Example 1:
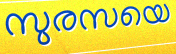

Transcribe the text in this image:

സുരസയെ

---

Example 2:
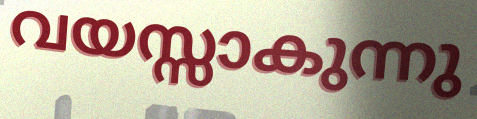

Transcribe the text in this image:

വയസ്സാകുന്നു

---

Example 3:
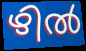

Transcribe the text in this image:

ഴിൽ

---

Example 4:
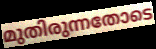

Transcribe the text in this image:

മുതിരുന്നതോടെ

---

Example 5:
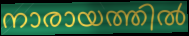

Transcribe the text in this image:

നാരായത്തിൽ